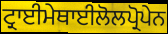
ਟ੍ਰਾਈਮੇਥਾਈਲੋਲਪ੍ਰੋਪੇਨ